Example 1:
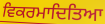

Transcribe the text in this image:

ਵਿਕਰਮਾਦਿਤਿਆ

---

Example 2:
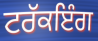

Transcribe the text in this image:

ਟਰੱਕਇੰਗ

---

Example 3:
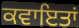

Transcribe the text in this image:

ਕਵਾਇਤਾਂ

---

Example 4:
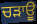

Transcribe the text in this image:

ਚੜਾਊ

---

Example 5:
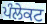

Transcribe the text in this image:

ਪੰਲੇਕਟ